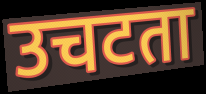
उचटता